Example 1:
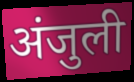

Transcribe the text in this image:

अंजुली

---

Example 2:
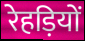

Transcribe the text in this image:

रेहड़ियों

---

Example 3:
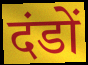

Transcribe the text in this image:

दंडों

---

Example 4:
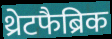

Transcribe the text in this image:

थ्रेटफैब्रिक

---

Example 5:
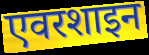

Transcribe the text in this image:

एवरशाइन